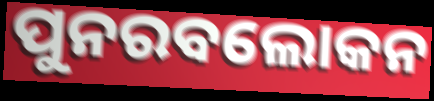
ପୁନରବଲୋକନ